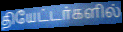
தியேட்டர்களில்